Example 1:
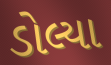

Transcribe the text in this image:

ડોલ્યા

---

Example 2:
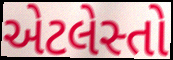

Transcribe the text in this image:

એટલેસ્તો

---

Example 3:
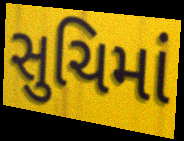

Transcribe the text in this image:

સુચિમાં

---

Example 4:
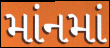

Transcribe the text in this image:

માંનમાં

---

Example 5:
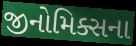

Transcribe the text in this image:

જીનોમિક્સના